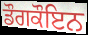
ਡੌਗਕੌਇਨ